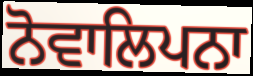
ਨੋਵਾਲਿਪਨਾ